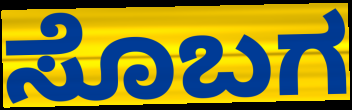
ಸೊಬಗ